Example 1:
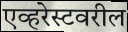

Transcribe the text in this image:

एव्हरेस्टवरील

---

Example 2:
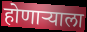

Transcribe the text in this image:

होणाऱ्याला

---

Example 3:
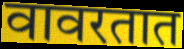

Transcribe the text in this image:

वावरतात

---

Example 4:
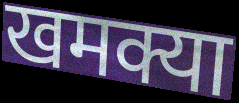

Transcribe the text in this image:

खमक्या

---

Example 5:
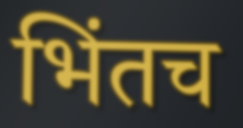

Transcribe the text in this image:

भिंतच